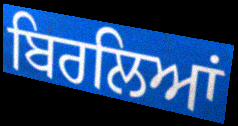
ਬਿਰਲਿਆਂ